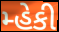
મ્હેકી